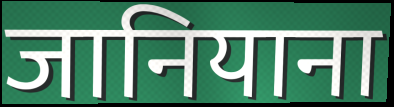
जानियाना